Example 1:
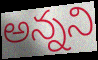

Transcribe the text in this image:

అన్నని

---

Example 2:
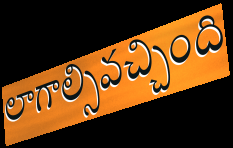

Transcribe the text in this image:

లాగాల్సివచ్చింది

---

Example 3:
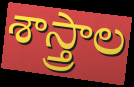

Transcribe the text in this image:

శాస్త్రాల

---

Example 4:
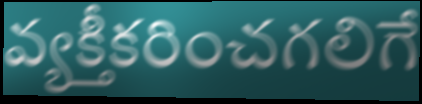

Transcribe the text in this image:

వ్యక్తీకరించగలిగే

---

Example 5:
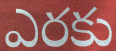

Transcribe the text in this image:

ఎరకు